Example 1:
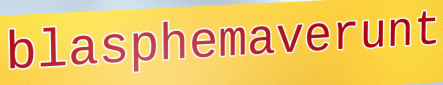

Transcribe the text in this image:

blasphemaverunt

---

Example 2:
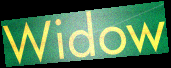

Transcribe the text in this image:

Widow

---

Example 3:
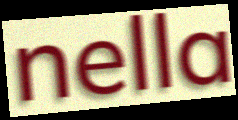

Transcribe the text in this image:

nella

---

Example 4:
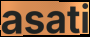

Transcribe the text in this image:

asati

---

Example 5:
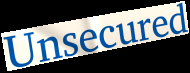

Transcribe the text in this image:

Unsecured